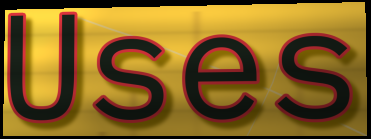
Uses